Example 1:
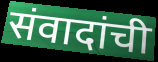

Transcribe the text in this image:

संवादांची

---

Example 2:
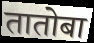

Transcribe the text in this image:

तातोबा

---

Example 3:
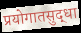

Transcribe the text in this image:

प्रयोगातसुद्धा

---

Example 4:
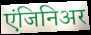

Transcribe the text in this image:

एंजिनिअर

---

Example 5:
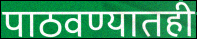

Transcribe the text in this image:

पाठवण्यातही